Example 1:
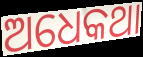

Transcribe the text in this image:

ଅଧେକଥା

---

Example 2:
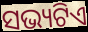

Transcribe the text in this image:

ସଭ୍ୟଟିଏ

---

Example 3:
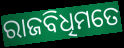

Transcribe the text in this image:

ରାଜବିଧିମତେ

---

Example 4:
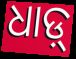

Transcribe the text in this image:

ଧାଡ଼୍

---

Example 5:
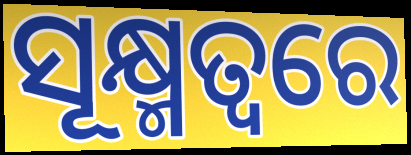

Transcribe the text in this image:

ସୂକ୍ଷ୍ମତ୍ୱରେ